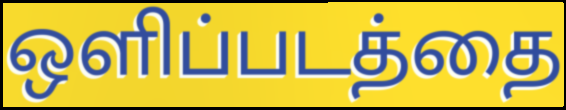
ஒளிப்படத்தை